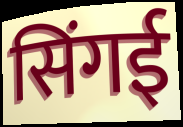
सिंगई